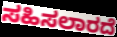
ಸಹಿಸಲಾರದೆ